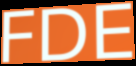
FDE